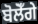
ਬੋਲੋਁਗੇ